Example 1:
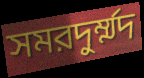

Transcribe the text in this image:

সমরদুর্ম্মদ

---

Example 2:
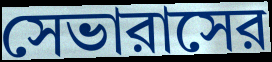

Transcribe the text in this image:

সেভারাসের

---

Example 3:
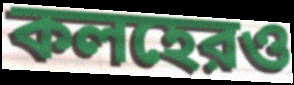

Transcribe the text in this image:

কলহেরও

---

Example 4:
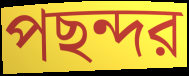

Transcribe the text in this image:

পছন্দর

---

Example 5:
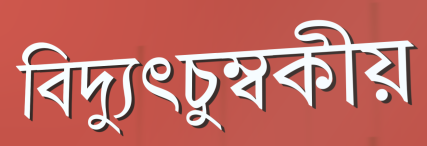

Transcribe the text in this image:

বিদ্যুৎচুম্বকীয়